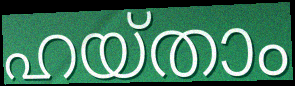
ഹയ്താം